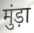
मुंड़ा